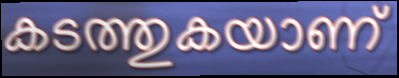
കടത്തുകയാണ്